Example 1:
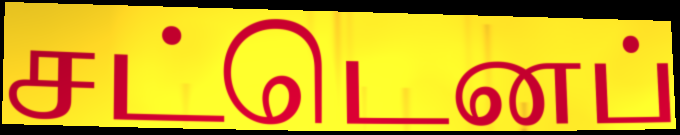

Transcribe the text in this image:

சட்டெனப்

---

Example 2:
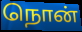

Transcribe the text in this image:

நொன்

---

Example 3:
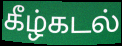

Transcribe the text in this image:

கீழ்கடல்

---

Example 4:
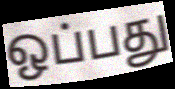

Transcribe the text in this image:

ஒப்பது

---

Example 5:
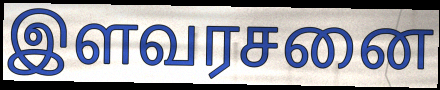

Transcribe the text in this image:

இளவரசனை